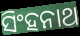
ସିଂହନାଥ